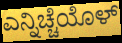
ಎನ್ನಿಚ್ಚೆಯೊಳ್